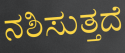
ನಶಿಸುತ್ತದೆ